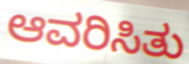
ಆವರಿಸಿತು